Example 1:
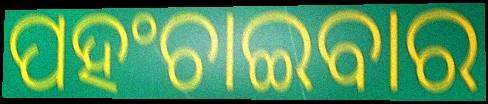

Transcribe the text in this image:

ପହଂଚାଇବାର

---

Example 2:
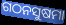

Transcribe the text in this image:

ଗଠନସୁଷମା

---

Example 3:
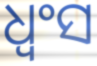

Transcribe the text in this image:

ଧ୍ଵଂସ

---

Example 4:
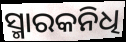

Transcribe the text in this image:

ସ୍ମାରକନିଧି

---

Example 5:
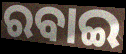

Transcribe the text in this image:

ରବାଇ